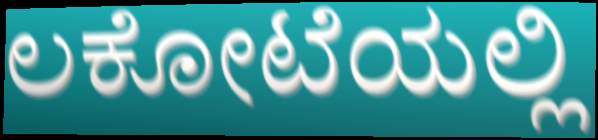
ಲಕೋಟೆಯಲ್ಲಿ